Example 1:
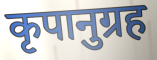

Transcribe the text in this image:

कृपानुग्रह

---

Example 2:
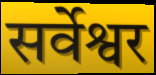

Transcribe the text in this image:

सर्वेश्वर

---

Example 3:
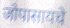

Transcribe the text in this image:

जोपासायचे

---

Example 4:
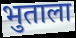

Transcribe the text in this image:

भुताला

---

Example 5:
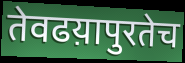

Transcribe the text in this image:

तेवढय़ापुरतेच